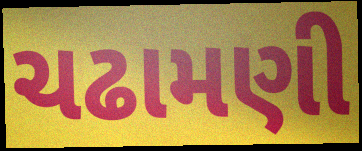
ચઢામણી